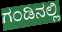
ಗಂಡಿನಲ್ಲಿ